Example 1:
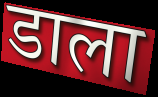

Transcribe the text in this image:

डाला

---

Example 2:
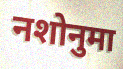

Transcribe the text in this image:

नशोनुमा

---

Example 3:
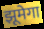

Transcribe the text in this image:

झूमेगा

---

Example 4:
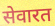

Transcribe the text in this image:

सेवारत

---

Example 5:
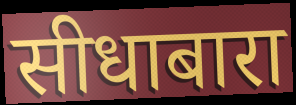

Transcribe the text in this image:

सीधाबारा